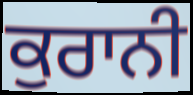
ਕੁਰਾਨੀ